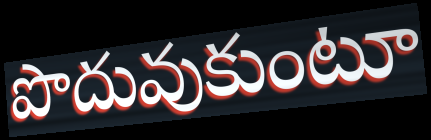
పొదువుకుంటూ